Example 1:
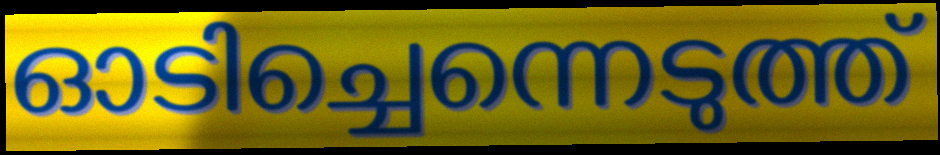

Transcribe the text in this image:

ഓടിച്ചെന്നെടുത്ത്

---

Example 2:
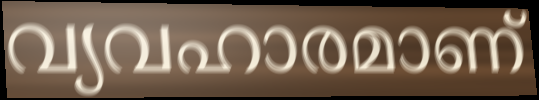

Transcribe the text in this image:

വ്യവഹാരമാണ്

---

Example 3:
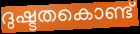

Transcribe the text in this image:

ദുഷ്ടതകൊണ്ട്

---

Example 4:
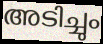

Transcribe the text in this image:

അടിച്ചും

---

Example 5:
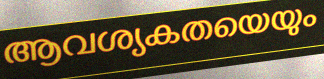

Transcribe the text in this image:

ആവശ്യകതയെയും